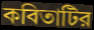
কবিতাটির